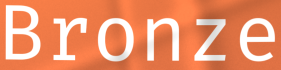
Bronze